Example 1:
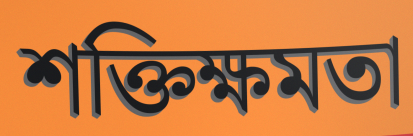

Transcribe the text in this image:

শক্তিক্ষমতা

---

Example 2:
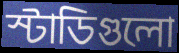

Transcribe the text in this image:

স্টাডিগুলো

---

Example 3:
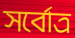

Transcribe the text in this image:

সর্বোত্র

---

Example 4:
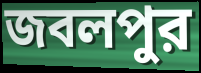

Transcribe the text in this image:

জবলপুর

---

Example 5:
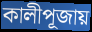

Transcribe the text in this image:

কালীপূজায়